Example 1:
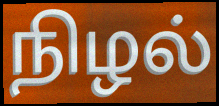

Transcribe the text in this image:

நிழல்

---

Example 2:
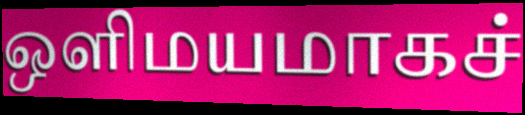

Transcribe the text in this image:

ஒளிமயமாகச்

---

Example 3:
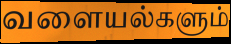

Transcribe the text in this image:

வளையல்களும்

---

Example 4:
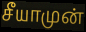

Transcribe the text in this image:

சீயாமுன்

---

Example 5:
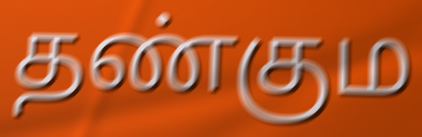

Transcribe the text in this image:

தண்கும